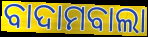
ବାଦାମବାଲା